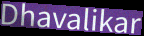
Dhavalikar